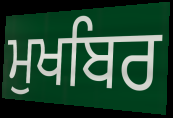
ਮੁਖਬਿਰ